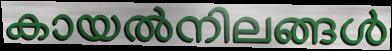
കായൽനിലങ്ങൾ